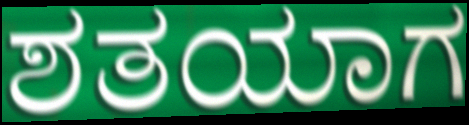
ಶತಯಾಗ